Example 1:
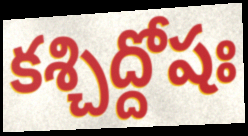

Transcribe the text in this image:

కశ్చిద్దోషః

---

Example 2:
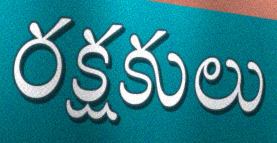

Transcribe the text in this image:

రక్షకులు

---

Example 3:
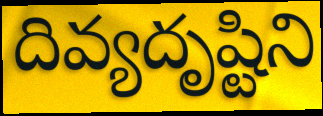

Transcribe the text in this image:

దివ్యదృష్టిని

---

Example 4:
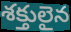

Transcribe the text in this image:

శక్తులైన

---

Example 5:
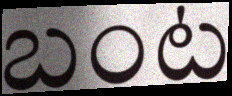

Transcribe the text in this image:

బంట